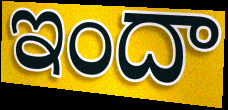
ఇందా